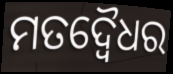
ମତଦ୍ୱୈଧର